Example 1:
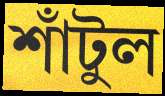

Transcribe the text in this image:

শাঁটুল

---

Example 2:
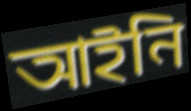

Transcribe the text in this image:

আইনি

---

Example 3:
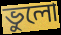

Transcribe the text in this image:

ভুলো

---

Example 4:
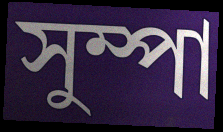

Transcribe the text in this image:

সুম্পা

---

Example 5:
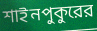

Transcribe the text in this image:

শাইনপুকুরের